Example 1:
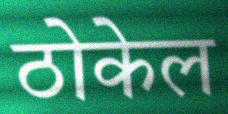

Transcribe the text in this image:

ठोकेल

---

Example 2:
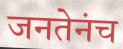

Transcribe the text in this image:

जनतेनंच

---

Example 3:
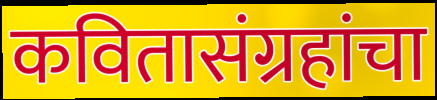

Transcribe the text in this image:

कवितासंग्रहांचा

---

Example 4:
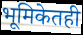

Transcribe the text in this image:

भूमिकेतही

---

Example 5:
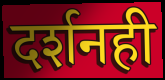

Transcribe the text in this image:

दर्शनही